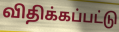
விதிக்கப்பட்டு